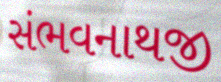
સંભવનાથજી